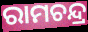
ରାମଚନ୍ଦ୍ର